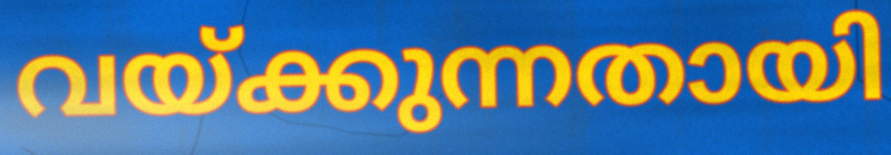
വയ്ക്കുന്നതായി